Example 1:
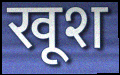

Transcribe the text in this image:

खूश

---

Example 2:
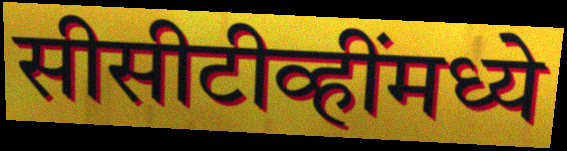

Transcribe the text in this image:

सीसीटीव्हींमध्ये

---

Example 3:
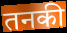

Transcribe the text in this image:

तनकी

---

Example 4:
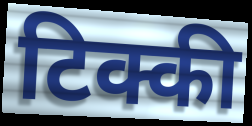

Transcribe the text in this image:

टिक्की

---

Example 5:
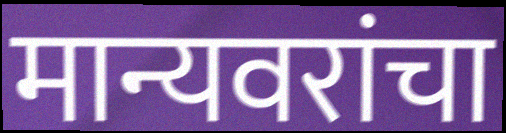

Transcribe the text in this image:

मान्यवरांचा